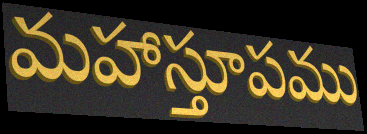
మహాస్తూపము